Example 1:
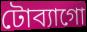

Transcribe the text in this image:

টোব্যাগো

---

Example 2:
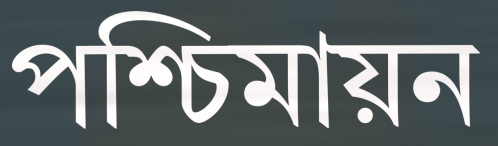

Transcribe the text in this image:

পশ্চিমায়ন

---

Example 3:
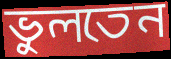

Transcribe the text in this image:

ভুলতেন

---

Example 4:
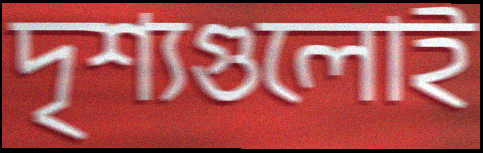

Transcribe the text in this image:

দৃশ্যগুলোই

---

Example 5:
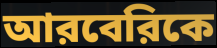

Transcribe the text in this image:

আরবেরিকে